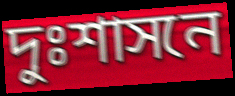
দুঃশাসনে